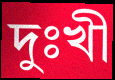
দুঃখী